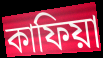
কাফিয়া